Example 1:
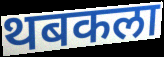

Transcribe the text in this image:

थबकला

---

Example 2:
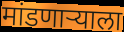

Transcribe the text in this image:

मांडणाऱ्याला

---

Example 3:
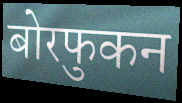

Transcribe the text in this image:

बोरफुकन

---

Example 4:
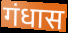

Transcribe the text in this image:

गंधास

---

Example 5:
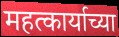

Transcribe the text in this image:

महत्कार्याच्या